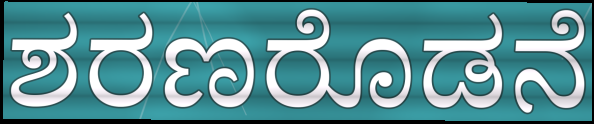
ಶರಣರೊಡನೆ